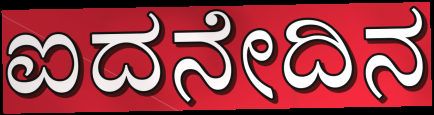
ಐದನೇದಿನ